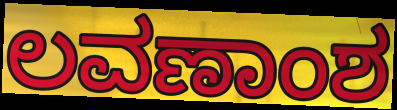
ಲವಣಾಂಶ